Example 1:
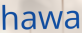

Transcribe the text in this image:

hawa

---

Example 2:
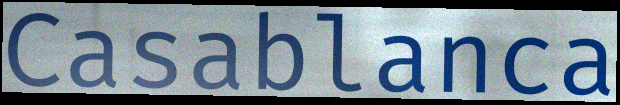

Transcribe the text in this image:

Casablanca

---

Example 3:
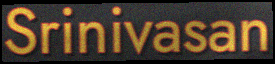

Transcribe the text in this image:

Srinivasan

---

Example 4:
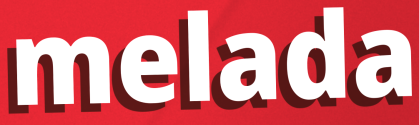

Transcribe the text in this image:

melada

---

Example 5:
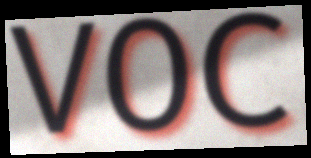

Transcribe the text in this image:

VOC